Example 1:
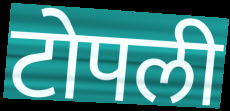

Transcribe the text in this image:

टोपली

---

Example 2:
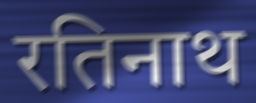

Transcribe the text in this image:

रतिनाथ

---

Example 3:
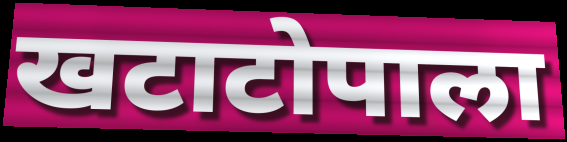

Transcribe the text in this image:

खटाटोपाला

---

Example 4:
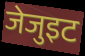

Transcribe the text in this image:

जेजुइट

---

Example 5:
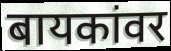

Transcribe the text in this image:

बायकांवर